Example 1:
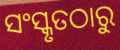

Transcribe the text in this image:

ସଂସ୍କୃତଠାରୁ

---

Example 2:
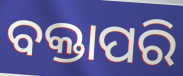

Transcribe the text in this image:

ବକ୍ତାପରି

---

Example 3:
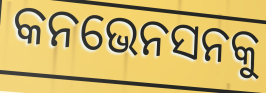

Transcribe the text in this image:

କନଭେନସନକୁ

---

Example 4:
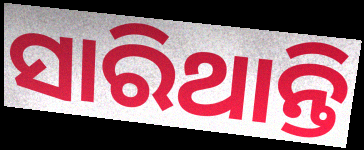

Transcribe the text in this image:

ସାରିଥାନ୍ତି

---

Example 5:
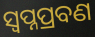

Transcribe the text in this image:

ସ୍ଵପ୍ନପ୍ରବଣ